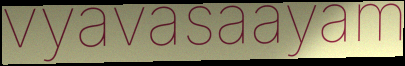
vyavasaayam